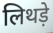
लिथड़े